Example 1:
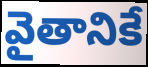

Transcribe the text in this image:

వైతానికే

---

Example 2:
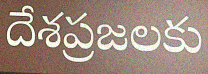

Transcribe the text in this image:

దేశప్రజలకు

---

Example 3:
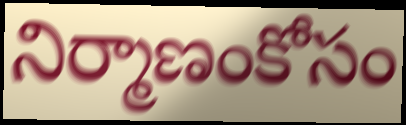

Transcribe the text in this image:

నిర్మాణంకోసం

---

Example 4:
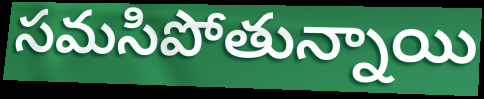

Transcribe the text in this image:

సమసిపోతున్నాయి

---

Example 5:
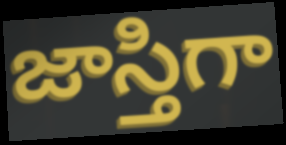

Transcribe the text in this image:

జాస్తిగా